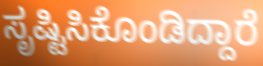
ಸೃಷ್ಟಿಸಿಕೊಂಡಿದ್ದಾರೆ